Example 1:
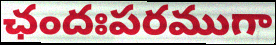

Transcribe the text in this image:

ఛందఃపరముగా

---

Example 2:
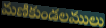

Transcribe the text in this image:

మణికుండలములు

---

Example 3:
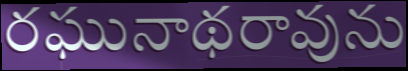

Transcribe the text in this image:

రఘునాథరావును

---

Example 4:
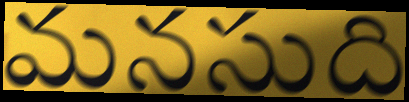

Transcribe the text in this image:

మనసుది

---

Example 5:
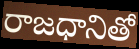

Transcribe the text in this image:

రాజధానితో